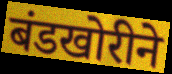
बंडखोरीने